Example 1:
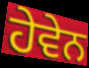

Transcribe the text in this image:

ਹੇਵੇਨ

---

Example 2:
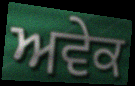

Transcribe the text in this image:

ਅਵੇਕ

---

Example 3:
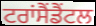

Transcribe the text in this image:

ਟਰਾਂਸੈਂਡੈਂਟਲ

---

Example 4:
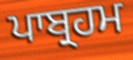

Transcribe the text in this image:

ਪਾਬ੍ਰਹਮ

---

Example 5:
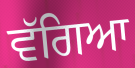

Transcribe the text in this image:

ਵੱਗਿਆ